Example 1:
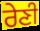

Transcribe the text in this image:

ਰੇਣੀ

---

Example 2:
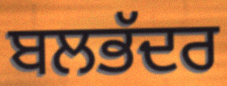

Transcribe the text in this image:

ਬਲਭੱਦਰ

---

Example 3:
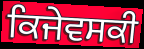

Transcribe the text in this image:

ਕਿਜੇਵਸਕੀ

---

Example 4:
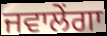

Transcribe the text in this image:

ਜਵਾਲੇਂਗਾ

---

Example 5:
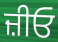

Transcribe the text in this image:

ਜ਼ੀਓ